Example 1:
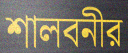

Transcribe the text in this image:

শালবনীর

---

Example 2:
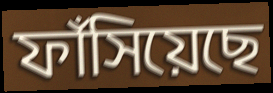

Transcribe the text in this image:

ফাঁসিয়েছে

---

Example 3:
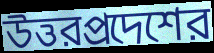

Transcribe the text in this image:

উত্তরপ্রদেশের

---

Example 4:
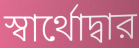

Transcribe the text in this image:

স্বার্থোদ্বার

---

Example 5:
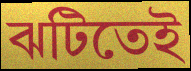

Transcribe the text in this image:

ঝটিতেই